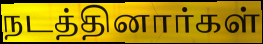
நடத்தினார்கள்